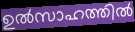
ഉൽസാഹത്തിൽ